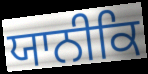
ਯਾਨੀਕਿ